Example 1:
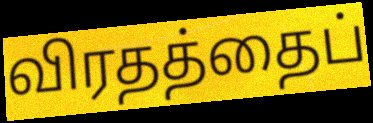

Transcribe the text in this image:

விரதத்தைப்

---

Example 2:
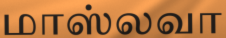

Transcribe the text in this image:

மாஸ்லவா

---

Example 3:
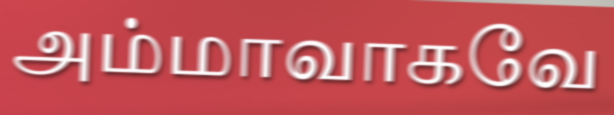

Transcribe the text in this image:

அம்மாவாகவே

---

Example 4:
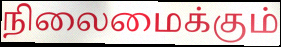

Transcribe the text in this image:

நிலைமைக்கும்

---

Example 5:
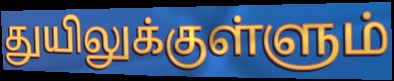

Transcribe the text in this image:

துயிலுக்குள்ளும்